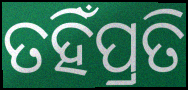
ତହିଁପ୍ରତି